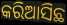
କରିଆସିଛ